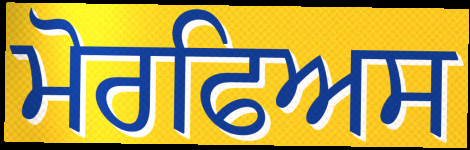
ਮੋਰਫਿਅਸ